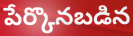
పేర్కొనబడిన